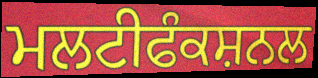
ਮਲਟੀਫੰਕਸ਼ਨਲ